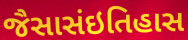
જૈસાસંઇતિહાસ